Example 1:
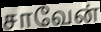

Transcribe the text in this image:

சாவேன்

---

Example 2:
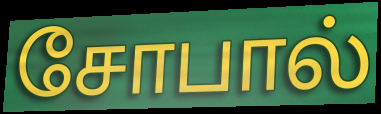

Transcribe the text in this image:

சோபால்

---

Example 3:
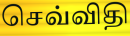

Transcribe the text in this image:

செவ்விதி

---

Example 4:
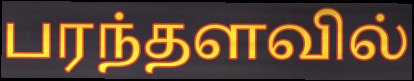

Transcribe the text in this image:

பரந்தளவில்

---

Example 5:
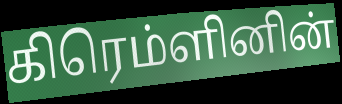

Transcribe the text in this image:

கிரெம்ளினின்